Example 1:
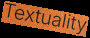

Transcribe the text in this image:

Textuality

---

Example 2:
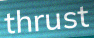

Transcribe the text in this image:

thrust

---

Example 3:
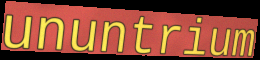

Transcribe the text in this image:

ununtrium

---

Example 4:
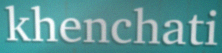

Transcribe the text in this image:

khenchati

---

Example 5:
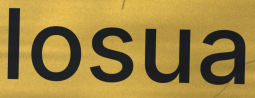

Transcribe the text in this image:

Iosua